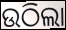
ଉଠିଲା